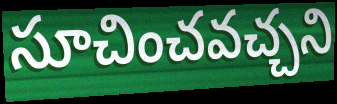
సూచించవచ్చని